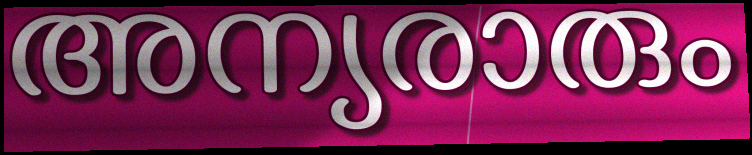
അന്യരാരും